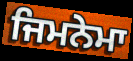
ਜਿਮਨੇਮਾ